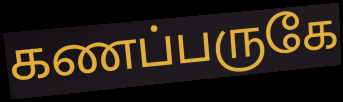
கணப்பருகே